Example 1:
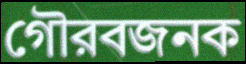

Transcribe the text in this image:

গৌরবজনক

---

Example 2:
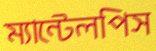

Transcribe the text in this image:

ম্যান্টেলপিস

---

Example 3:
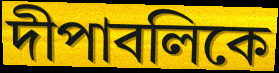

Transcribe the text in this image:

দীপাবলিকে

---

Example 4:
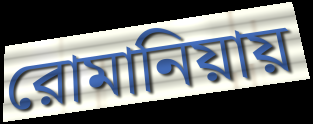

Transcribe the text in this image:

রোমানিয়ায়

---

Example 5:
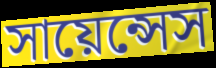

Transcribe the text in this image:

সায়েন্সেস